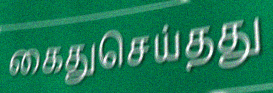
கைதுசெய்தது